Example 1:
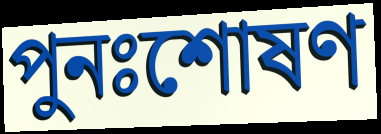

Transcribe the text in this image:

পুনঃশোষণ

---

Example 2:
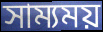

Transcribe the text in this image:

সাম্যময়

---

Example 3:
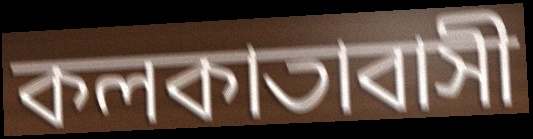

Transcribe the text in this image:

কলকাতাবাসী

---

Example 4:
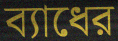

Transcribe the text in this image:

ব্যাধের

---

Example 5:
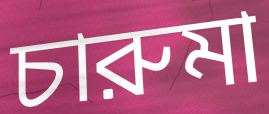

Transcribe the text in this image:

চারুমা